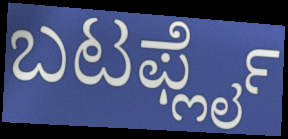
ಬಟರ್ಫ್ಲೈ